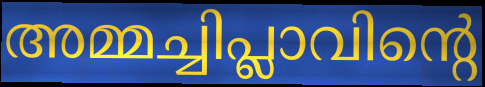
അമ്മച്ചിപ്ലാവിന്റെ